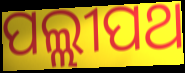
ପଲ୍ଲୀପଥ